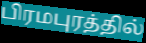
பிரமபுரத்தில்